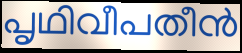
പൃഥിവീപതീൻ